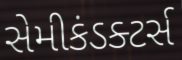
સેમીકંડક્ટર્સ